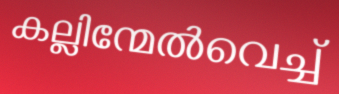
കല്ലിന്മേൽവെച്ച്